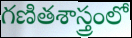
గణితశాస్త్రంలో